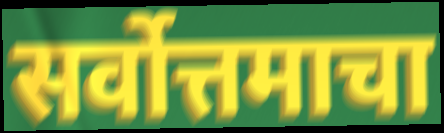
सर्वोत्तमाचा